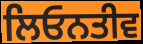
ਲਿਓਨਤੀਵ